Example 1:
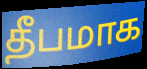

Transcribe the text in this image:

தீபமாக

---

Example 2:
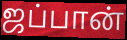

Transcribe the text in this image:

ஜப்பான்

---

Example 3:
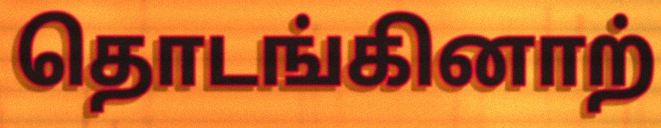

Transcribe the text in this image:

தொடங்கினாற்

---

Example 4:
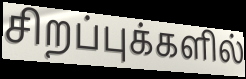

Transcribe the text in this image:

சிறப்புக்களில்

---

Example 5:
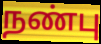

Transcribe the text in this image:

நண்பு